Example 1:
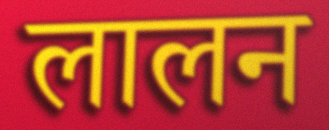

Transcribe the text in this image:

लालन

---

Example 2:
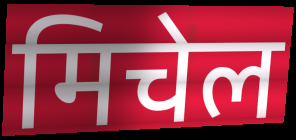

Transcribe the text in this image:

मिचेल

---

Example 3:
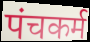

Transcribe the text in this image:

पंचकर्म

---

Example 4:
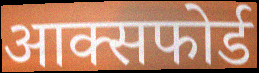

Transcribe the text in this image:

आक्सफोर्ड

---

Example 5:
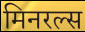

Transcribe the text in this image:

मिनरल्स